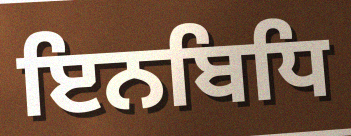
ਇਨਬਿਧਿ